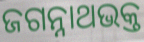
ଜଗନ୍ନାଥଭକ୍ତ